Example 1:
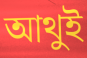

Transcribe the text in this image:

আথুই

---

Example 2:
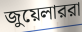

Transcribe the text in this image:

জুয়েলাররা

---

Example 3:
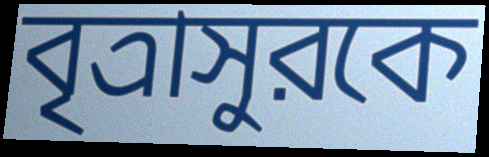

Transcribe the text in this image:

বৃত্রাসুরকে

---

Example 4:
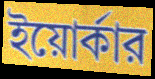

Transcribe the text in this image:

ইয়োর্কার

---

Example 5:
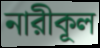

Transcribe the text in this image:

নারীকূল